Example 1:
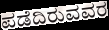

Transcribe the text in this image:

ಪಡೆದಿರುವವರ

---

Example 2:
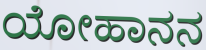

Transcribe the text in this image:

ಯೋಹಾನನ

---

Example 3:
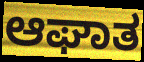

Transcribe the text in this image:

ಆಘಾತ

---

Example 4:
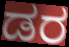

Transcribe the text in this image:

ಡರ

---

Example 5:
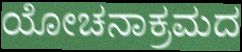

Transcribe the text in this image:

ಯೋಚನಾಕ್ರಮದ